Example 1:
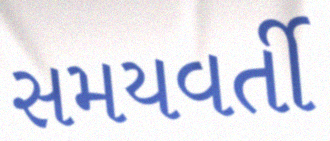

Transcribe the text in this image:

સમયવર્તી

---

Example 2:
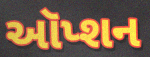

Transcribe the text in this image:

ઑપ્શન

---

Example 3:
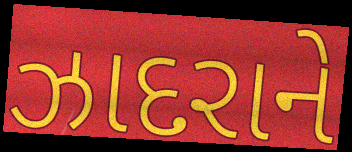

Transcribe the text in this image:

ઝાદરાને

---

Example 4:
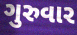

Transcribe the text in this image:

ગુરુવાર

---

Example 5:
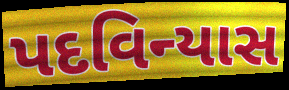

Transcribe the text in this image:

પદવિન્યાસ